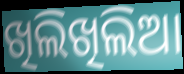
ଖିଲିଖିଲିଆ